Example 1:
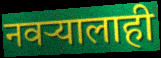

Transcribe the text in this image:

नवऱ्यालाही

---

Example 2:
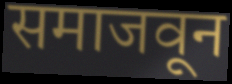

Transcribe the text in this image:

समाजवून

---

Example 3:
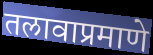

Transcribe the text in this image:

तलावाप्रमाणे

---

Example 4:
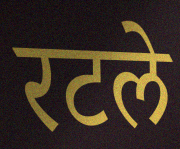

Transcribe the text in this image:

रटले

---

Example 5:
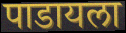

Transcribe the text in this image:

पाडायला